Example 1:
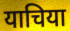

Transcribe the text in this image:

याचिया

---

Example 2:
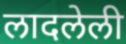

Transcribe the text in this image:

लादलेली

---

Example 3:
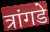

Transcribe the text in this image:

त्रांगडे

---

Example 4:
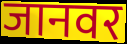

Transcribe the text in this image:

जानवर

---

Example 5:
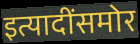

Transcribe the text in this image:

इत्यादींसमोर